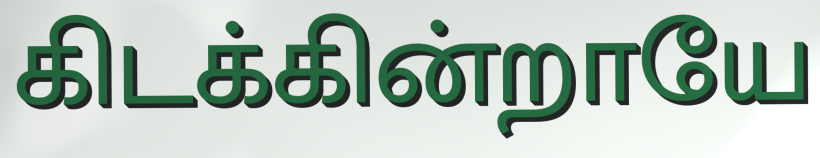
கிடக்கின்றாயே